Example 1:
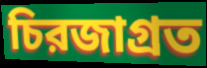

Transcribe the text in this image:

চিরজাগ্রত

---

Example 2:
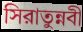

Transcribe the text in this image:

সিরাতুন্নবী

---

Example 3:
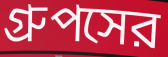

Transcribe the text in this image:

গ্রুপসের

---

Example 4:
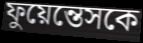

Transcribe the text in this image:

ফুয়েন্তেসকে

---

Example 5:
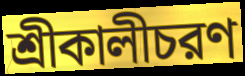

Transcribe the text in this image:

শ্রীকালীচরণ